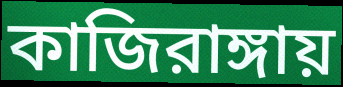
কাজিরাঙ্গায়